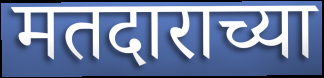
मतदाराच्या